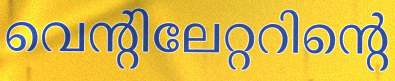
വെന്റിലേറ്ററിന്റെ